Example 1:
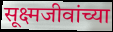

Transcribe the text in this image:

सूक्ष्मजीवांच्या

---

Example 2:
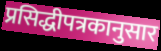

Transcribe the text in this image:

प्रसिद्धीपत्रकानुसार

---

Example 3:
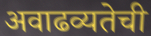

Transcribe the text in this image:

अवाढव्यतेची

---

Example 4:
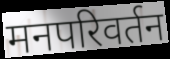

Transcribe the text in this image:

मनपरिवर्तन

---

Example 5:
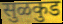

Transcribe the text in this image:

सुळकुड